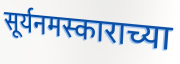
सूर्यनमस्काराच्या